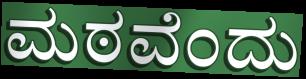
ಮಠವೆಂದು